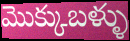
మొక్కుబళ్ళు